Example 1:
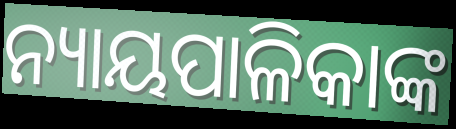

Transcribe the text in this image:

ନ୍ୟାୟପାଳିକାଙ୍କ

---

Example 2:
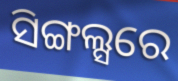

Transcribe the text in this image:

ସିଙ୍ଗଲ୍ସରେ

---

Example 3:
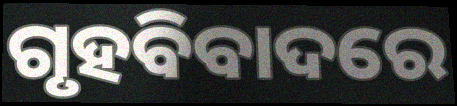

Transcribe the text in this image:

ଗୃହବିବାଦରେ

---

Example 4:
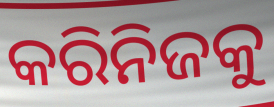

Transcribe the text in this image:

କରିନିଜକୁ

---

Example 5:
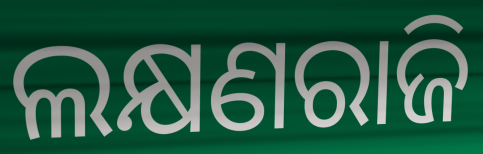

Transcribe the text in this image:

ଲକ୍ଷଣରାଜି